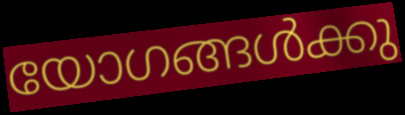
യോഗങ്ങൾക്കു